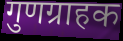
गुणग्राहक